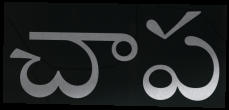
చాప